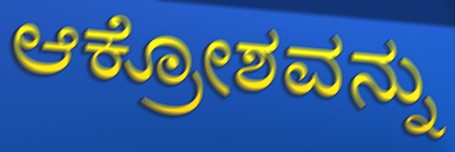
ಆಕ್ರೋಶವನ್ನು